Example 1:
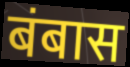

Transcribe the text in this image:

बंबास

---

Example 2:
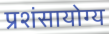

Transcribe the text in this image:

प्रशंसायोग्य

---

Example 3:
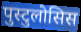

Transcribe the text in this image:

पुस्टुलोसिस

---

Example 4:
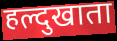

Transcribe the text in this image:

हल्दुखाता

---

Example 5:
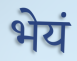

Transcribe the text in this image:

भेयं